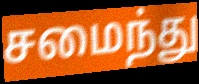
சமைந்து